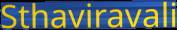
Sthaviravali